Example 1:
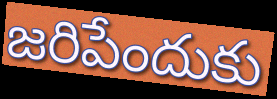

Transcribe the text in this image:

జరిపేందుకు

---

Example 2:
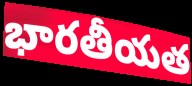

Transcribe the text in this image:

భారతీయత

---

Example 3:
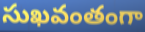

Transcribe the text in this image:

సుఖవంతంగా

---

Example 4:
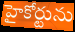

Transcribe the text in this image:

హైకోర్టును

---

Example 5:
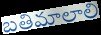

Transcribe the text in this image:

బతిమాలాలి